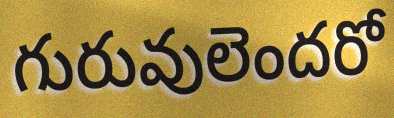
గురువులెందరో